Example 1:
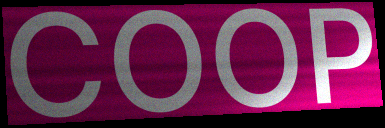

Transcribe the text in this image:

COOP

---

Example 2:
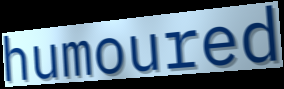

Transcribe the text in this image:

humoured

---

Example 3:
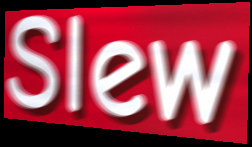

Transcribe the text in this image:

Slew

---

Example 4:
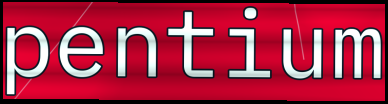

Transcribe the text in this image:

pentium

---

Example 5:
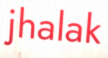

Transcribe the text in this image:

jhalak